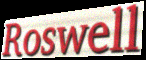
Roswell